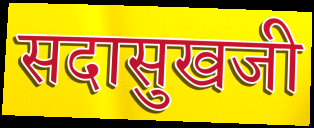
सदासुखजी